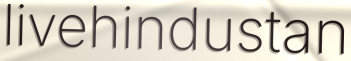
livehindustan